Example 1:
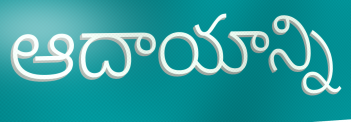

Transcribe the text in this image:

ఆదాయాన్ని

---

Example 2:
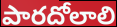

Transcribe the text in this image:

పారదోలాలి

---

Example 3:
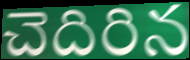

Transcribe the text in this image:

చెదిరిన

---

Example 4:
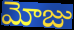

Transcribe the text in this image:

మోజు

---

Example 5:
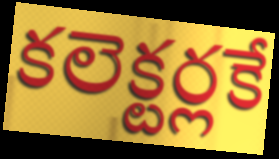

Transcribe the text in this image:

కలెక్టర్లకే